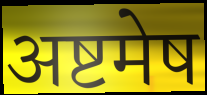
अष्टमेष